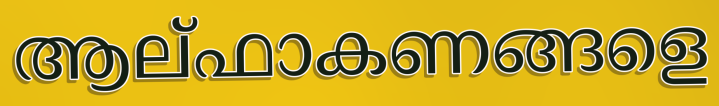
ആല്ഫാകണങ്ങളെ